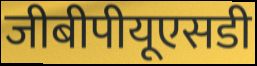
जीबीपीयूएसडी